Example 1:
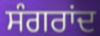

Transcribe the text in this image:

ਸੰਗਰਾਂਦ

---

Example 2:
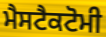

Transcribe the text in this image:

ਮੈਸਟੈਕਟੋਮੀ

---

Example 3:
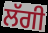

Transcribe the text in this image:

ਲੱਗੀ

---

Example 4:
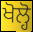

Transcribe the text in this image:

ਖੋਲ੍ਹੋ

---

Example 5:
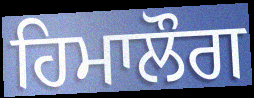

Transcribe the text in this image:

ਹਿਮਾਲੌਗ